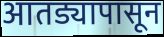
आतड्यापासून